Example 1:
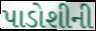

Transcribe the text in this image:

પાડોશીની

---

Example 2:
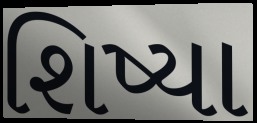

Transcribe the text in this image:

શિષ્યા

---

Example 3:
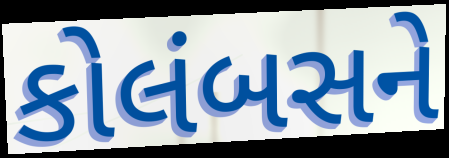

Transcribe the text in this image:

કોલંબસને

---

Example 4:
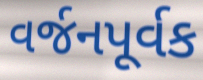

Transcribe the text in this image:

વર્જનપૂર્વક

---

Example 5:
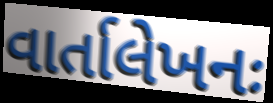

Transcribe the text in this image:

વાર્તાલેખનઃ